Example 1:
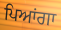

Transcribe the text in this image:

ਪਿਆਂਗਾ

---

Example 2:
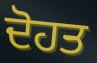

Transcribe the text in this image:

ਦੋਹਤ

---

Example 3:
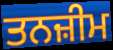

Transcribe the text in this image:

ਤਨਜ਼ੀਮ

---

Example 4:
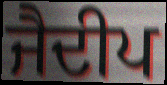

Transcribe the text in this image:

ਜੈਦੀਪ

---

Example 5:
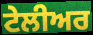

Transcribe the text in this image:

ਟੇਲੀਅਰ